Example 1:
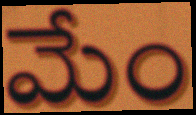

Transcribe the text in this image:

మేం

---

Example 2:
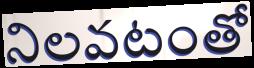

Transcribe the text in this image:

నిలవటంతో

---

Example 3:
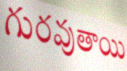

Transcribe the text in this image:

గురవుతాయి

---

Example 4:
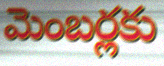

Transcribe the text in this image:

మెంబర్లకు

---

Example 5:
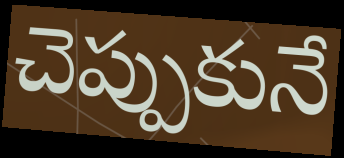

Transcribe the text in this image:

చెప్పుకునే